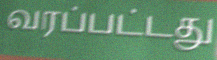
வரப்பட்டது